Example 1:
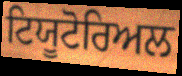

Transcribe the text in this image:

ਟਿਯੂਟੋਰਿਅਲ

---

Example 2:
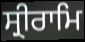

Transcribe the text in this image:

ਸ੍ਰੀਰਾਮਿ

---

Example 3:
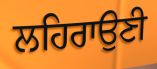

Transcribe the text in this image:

ਲਹਿਰਾਉਣੀ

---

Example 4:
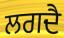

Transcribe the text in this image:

ਲਗਦੈ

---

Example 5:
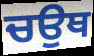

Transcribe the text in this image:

ਚਉਥ